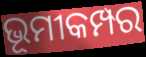
ଭୂମୀକମ୍ପର